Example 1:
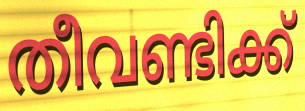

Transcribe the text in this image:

തീവണ്ടിക്ക്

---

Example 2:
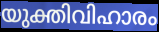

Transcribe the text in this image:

യുക്തിവിഹാരം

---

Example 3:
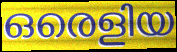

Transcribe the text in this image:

ഒരെളിയ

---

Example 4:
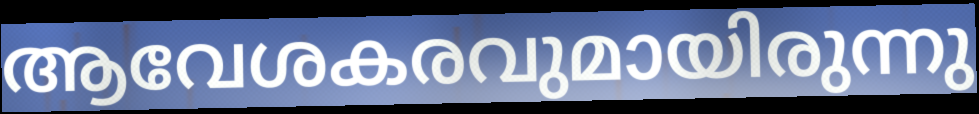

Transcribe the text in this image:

ആവേശകരവുമായിരുന്നു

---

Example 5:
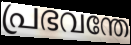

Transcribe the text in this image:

പ്രഭവന്തേ